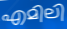
എമിലി